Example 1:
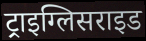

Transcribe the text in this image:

ट्राइग्लिसराइड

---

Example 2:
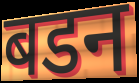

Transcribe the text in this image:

बडन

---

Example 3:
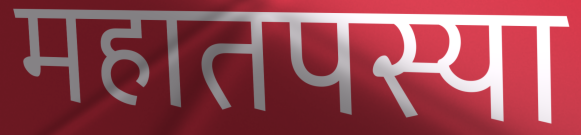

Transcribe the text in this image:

महातपस्या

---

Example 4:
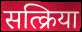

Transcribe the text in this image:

सत्क्रिया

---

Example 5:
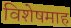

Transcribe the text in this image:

विशेषमाह